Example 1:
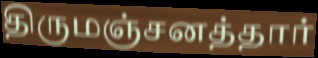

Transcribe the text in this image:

திருமஞ்சனத்தார்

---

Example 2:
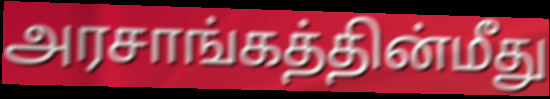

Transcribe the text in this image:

அரசாங்கத்தின்மீது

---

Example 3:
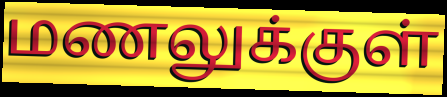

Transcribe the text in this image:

மணலுக்குள்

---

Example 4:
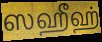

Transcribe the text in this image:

ஸஹீஹ்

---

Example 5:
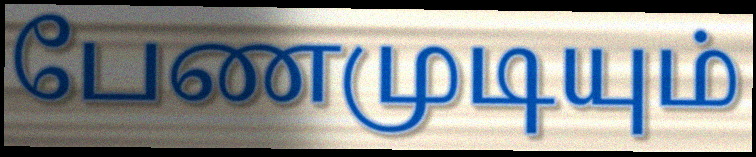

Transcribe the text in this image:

பேணமுடியும்